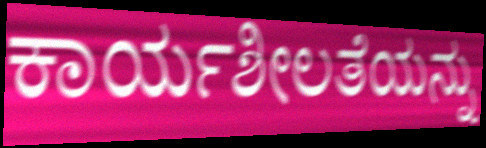
ಕಾರ್ಯಶೀಲತೆಯನ್ನು